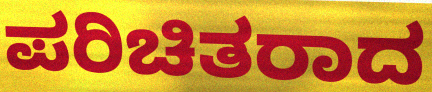
ಪರಿಚಿತರಾದ